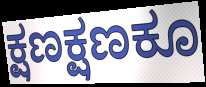
ಕ್ಷಣಕ್ಷಣಕೂ